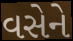
વસેને